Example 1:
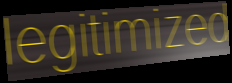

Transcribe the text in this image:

legitimized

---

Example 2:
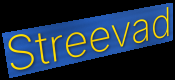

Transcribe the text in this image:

Streevad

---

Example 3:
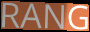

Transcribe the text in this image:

RANG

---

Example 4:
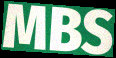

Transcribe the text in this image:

MBS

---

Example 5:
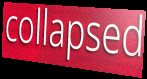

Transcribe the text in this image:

collapsed